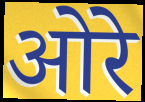
ओरे